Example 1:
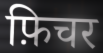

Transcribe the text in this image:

फ़िचर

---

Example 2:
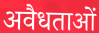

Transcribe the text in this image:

अवैधताओं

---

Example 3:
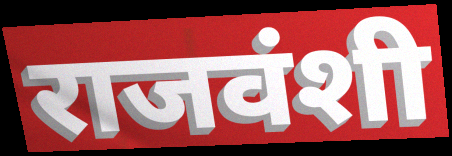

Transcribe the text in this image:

राजवंशी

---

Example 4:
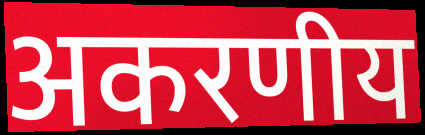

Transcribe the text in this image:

अकरणीय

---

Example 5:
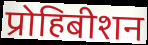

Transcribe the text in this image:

प्रोहिबीशन